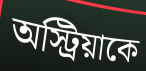
অস্ট্রিয়াকে